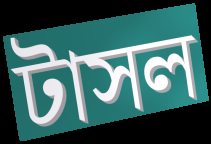
টাসল